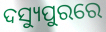
ଦସ୍ୟୁପୁରରେ